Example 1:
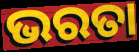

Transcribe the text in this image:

ଭରତା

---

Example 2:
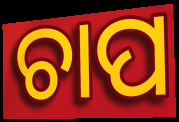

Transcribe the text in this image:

ଚାପ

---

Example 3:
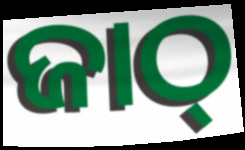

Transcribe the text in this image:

ଜାଠ୍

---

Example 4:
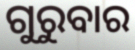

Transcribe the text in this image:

ଗୁରୁବାର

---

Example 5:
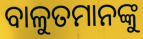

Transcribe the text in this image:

ବାଳୁତମାନଙ୍କୁ